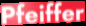
Pfeiffer